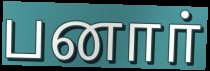
பனார்